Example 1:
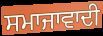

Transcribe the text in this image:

ਸਮਾਜਾਵਾਦੀ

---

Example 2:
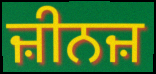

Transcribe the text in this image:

ਜ਼ੀਨਜ਼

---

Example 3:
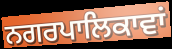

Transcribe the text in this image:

ਨਗਰਪਾਲਿਕਾਵਾਂ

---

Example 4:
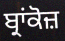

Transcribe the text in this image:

ਬ੍ਰਾਂਕੋਜ਼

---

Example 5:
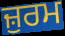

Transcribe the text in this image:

ਜ਼ੁਰਮ